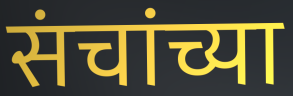
संचांच्या